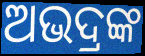
ଅଭଦ୍ରଙ୍କ